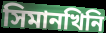
সিমানখিনি